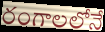
రంగాలలోనే